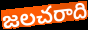
జలచరాది